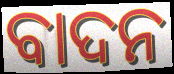
ବାଦନ